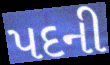
પદની